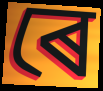
ৰে